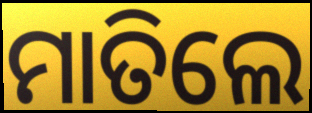
ମାତିଲେ